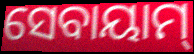
ସେବାୟାମ୍